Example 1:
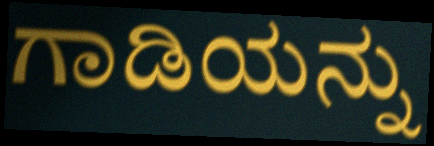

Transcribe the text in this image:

ಗಾಡಿಯನ್ನು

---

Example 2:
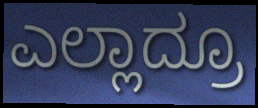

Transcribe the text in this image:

ಎಲ್ಲಾದ್ರೂ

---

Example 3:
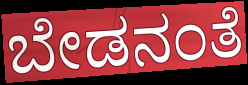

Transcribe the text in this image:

ಬೇಡನಂತೆ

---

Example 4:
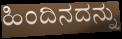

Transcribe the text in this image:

ಹಿಂದಿನದನ್ನು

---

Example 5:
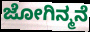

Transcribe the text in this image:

ಜೋಗಿನ್ಮನೆ